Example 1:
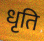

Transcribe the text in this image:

धृति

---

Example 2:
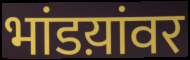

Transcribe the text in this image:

भांडय़ांवर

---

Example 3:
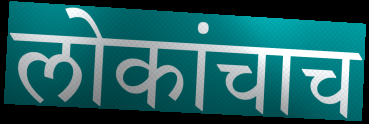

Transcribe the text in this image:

लोकांचाच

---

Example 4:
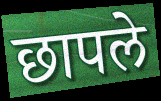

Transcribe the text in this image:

छापले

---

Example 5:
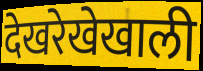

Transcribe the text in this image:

देखरेखेखाली